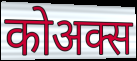
कोअक्स